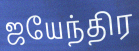
ஜயேந்திர